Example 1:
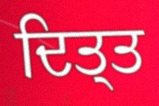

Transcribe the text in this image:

ਦਿਤ੍ਤ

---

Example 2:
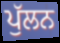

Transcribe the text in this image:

ਪੁੱਲਨ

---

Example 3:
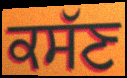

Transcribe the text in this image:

ਕਸੱਣ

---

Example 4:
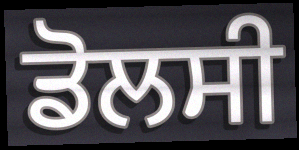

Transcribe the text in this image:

ਡੋਲਸੀ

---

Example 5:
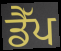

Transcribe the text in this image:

ਡੈੱਪ